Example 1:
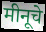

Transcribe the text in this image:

मीनूचे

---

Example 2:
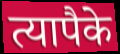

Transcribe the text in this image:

त्यापैके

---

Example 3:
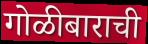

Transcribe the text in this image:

गोळीबाराची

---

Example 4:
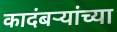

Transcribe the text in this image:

कादंबर्‍यांच्या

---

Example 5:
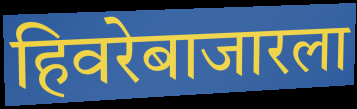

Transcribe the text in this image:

हिवरेबाजारला